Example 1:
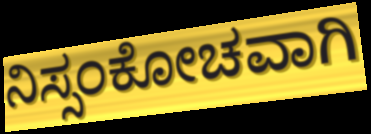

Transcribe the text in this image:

ನಿಸ್ಸಂಕೋಚವಾಗಿ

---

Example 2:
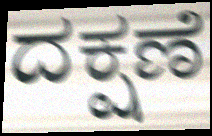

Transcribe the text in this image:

ದಕ್ಷಣೆ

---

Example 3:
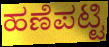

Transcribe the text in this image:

ಹಣೆಪಟ್ಟಿ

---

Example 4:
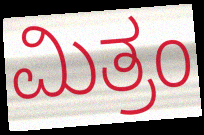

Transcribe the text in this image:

ಮಿತ್ರಂ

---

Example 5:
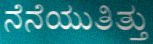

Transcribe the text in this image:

ನೆನೆಯುತಿತ್ತು